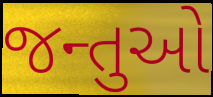
જન્તુઓ